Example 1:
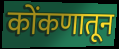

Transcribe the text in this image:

कोंकणातून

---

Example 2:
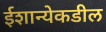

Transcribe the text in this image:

ईशान्येकडील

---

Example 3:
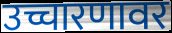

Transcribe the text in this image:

उच्चारणावर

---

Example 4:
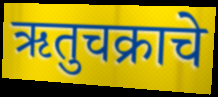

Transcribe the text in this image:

ऋतुचक्राचे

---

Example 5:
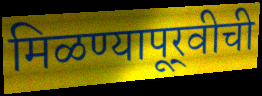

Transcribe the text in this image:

मिळण्यापूर्वीची